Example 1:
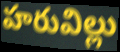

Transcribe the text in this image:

హరువిల్లు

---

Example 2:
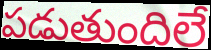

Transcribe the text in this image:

పడుతుందిలే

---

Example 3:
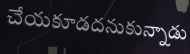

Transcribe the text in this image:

చేయకూడదనుకున్నాడు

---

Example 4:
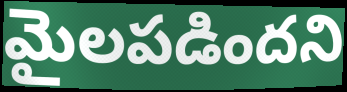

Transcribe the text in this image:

మైలపడిందని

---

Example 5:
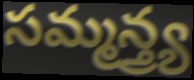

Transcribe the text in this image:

సమ్మన్త్ర్య